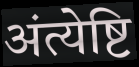
अंत्येष्टि